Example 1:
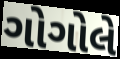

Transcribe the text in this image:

ગોગોલે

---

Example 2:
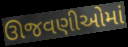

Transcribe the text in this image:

ઊજવણીઓમાં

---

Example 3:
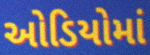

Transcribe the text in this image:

ઓડિયોમાં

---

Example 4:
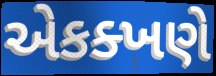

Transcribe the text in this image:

એકક્ખણે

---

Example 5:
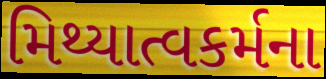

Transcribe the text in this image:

મિથ્યાત્વકર્મના